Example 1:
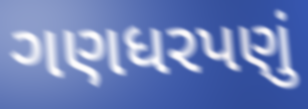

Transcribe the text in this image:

ગણધરપણું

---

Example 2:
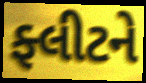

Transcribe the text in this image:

ફ્લીટને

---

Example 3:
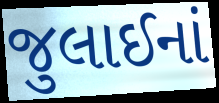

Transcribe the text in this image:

જુલાઈનાં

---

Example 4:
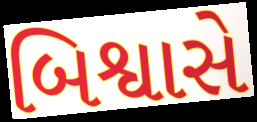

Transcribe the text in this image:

બિશ્વાસે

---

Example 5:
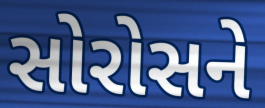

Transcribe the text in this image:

સોરોસને